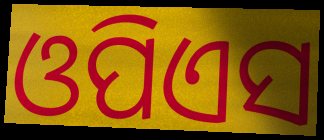
ଓପିଏସ